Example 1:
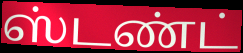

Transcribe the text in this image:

ஸ்டண்ட்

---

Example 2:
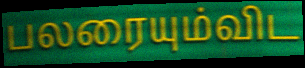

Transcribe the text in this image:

பலரையும்விட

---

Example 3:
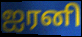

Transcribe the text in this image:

ஐரனி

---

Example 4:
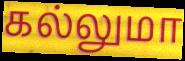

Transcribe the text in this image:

கல்லுமா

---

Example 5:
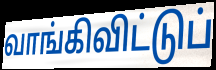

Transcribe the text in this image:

வாங்கிவிட்டுப்